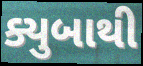
ક્યુબાથી